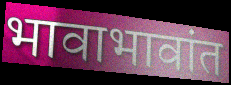
भावाभावांत